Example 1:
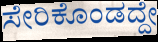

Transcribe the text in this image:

ಸೇರಿಕೊಂಡದ್ದೇ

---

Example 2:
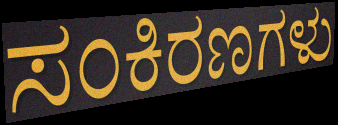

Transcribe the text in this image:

ಸಂಕಿರಣಗಳು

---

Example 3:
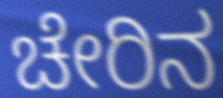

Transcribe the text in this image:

ಚೇರಿನ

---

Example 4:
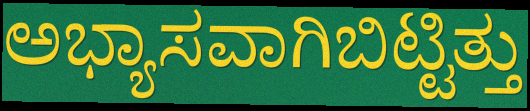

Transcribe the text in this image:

ಅಭ್ಯಾಸವಾಗಿಬಿಟ್ಟಿತ್ತು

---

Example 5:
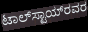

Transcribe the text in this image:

ಟಾಲ್‌ಸ್ಟಾಯ್‌ರವರ